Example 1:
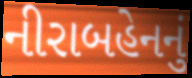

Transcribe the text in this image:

નીરાબહેનનું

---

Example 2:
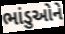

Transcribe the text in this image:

ભાંડુઓને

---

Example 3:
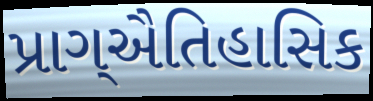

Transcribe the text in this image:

પ્રાગ્ઐતિહાસિક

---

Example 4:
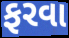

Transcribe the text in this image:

ફરવા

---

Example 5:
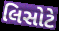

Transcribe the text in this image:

લિસોટે